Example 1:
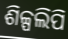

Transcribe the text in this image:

ଶିଳ୍ପଲିପି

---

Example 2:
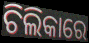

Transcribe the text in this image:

ଚିଲିକାରେ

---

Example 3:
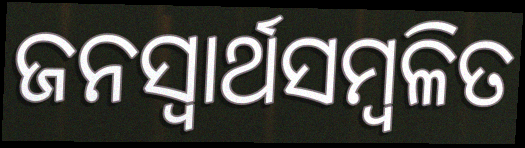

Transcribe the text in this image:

ଜନସ୍ବାର୍ଥସମ୍ବଳିତ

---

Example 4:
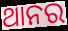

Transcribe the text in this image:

ଥାନର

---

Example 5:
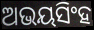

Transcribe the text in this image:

ଅଭୟସିଂହ